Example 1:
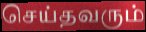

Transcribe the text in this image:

செய்தவரும்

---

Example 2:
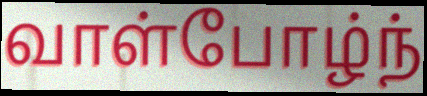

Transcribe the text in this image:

வாள்போழ்ந்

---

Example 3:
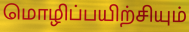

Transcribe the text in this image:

மொழிப்பயிற்சியும்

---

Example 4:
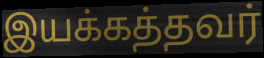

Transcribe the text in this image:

இயக்கத்தவர்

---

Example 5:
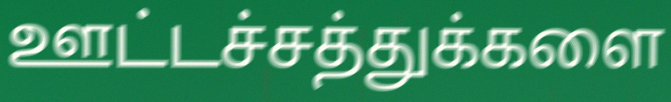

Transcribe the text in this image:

ஊட்டச்சத்துக்களை